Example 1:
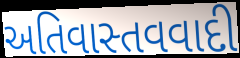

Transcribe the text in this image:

અતિવાસ્તવવાદી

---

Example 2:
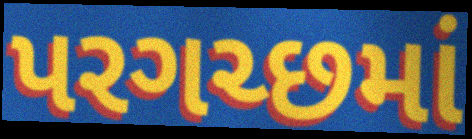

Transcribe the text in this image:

પરગચ્છમાં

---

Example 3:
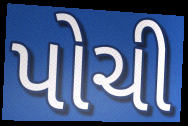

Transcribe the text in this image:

પોચી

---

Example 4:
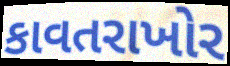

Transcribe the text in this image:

કાવતરાખોર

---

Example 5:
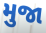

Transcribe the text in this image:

મુજા